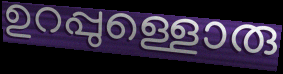
ഉറപ്പുള്ളൊരു